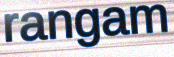
rangam